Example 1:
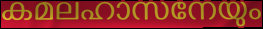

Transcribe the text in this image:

കമലഹാസനേയും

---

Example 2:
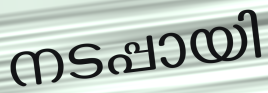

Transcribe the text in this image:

നടപ്പായി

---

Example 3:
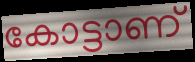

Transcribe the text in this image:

കോട്ടാണ്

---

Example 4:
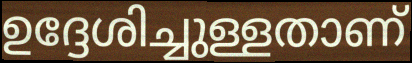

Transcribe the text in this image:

ഉദ്ദേശിച്ചുള്ളതാണ്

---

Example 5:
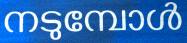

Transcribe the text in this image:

നടുമ്പോൾ